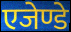
एजेण्डे